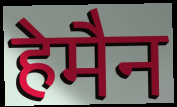
हेमैन